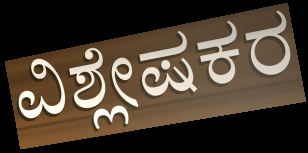
ವಿಶ್ಲೇಷಕರ